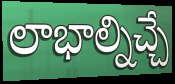
లాభాల్నిచ్చే